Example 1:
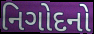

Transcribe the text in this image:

નિગોદનો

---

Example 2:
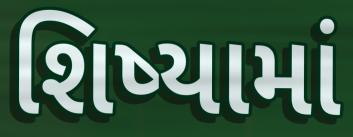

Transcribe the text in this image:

શિષ્યામાં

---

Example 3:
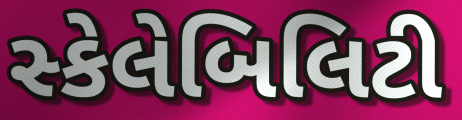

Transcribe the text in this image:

સ્કેલેબિલિટી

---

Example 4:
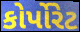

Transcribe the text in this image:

કોર્પોરેટ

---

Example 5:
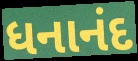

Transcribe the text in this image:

ધનાનંદ